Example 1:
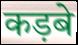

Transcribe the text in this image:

कड़बे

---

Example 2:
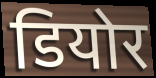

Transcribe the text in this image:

डियोर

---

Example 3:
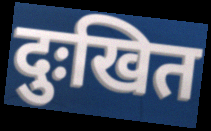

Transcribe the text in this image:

दुःखित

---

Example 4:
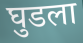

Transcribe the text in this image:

घुडला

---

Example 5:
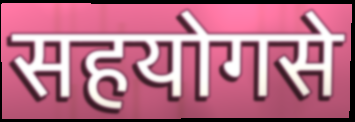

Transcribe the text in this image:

सहयोगसे